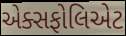
એક્સફોલિએટ